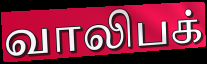
வாலிபக்